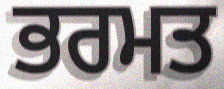
ਭਰਮਤ